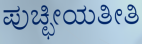
ಪುಚ್ಛೀಯತೀತಿ